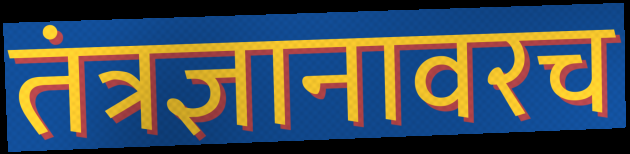
तंत्रज्ञानावरच